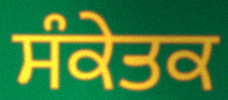
ਸੰਕੇਤਕ